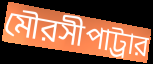
মৌরসীপাট্রার